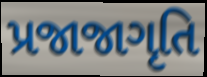
પ્રજાજાગૃતિ